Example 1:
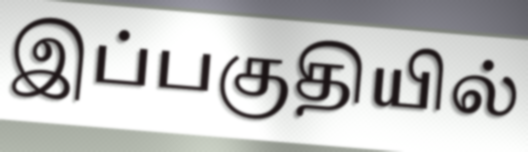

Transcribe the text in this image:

இப்பகுதியில்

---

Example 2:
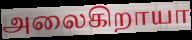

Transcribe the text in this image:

அலைகிறாயா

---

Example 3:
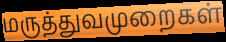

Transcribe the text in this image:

மருத்துவமுறைகள்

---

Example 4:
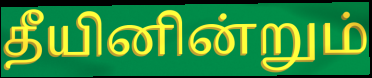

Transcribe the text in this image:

தீயினின்றும்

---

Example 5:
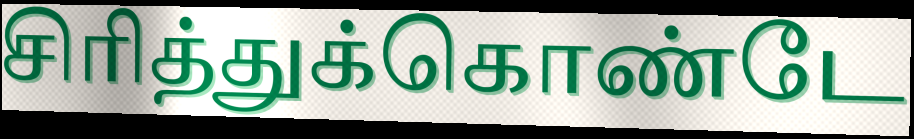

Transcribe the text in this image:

சிரித்துக்கொண்டே